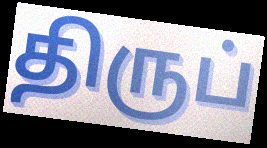
திருப்